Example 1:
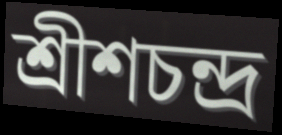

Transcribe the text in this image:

শ্রীশচন্দ্র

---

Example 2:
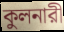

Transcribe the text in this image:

কুলনারী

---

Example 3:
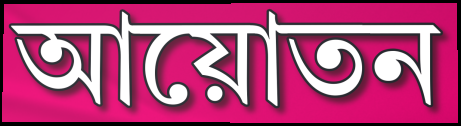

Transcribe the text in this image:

আয়োতন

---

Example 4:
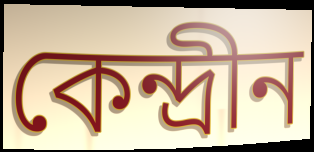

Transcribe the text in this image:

কেন্দ্রীন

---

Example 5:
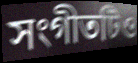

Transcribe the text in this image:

সংগীতটিও